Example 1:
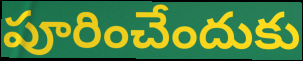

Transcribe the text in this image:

పూరించేందుకు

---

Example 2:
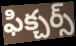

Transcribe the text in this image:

ఫిక్చర్స్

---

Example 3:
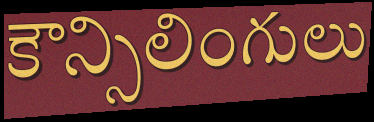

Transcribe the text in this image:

కౌన్సిలింగులు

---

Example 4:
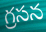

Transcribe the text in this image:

గ్రసన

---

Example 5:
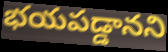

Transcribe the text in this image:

భయపడ్డానని